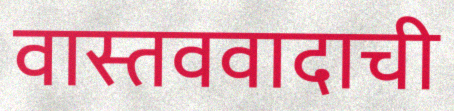
वास्तववादाची